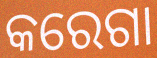
କରେଗା